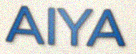
AIYA